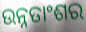
ଉନ୍ନତାଂଶର